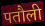
पतौली